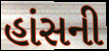
હાંસની